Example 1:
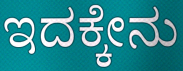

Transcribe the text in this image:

ಇದಕ್ಕೇನು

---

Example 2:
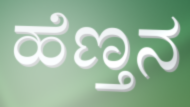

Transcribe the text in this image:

ಹೆಣ್ತನ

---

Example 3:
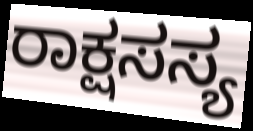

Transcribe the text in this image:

ರಾಕ್ಷಸಸ್ಯ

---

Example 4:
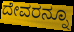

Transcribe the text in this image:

ದೇವರನ್ನೂ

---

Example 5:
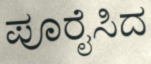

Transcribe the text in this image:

ಪೂರೈಸಿದ